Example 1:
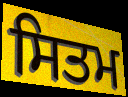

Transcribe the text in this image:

ਸਿਤਮ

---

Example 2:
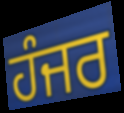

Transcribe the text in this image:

ਹੰਜਰ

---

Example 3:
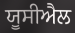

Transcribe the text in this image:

ਯੂਸੀਐਲ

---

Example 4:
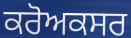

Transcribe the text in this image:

ਕਰੋਅਕਸਰ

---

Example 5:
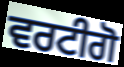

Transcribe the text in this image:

ਵਰਟੀਗੋ